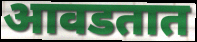
आवडतात